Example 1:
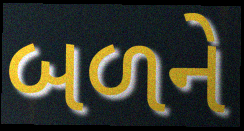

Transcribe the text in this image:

બળને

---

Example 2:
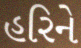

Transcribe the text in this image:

હરિને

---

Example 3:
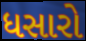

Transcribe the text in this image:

ધસારો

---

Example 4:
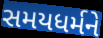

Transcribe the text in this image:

સમયધર્મને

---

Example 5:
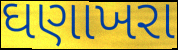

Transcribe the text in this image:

ઘણાખરા